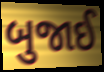
બુજાઈ